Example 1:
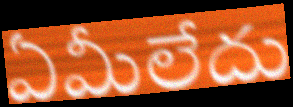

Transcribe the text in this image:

ఏమీలేదు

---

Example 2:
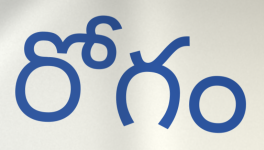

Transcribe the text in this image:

రోగం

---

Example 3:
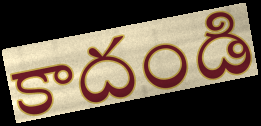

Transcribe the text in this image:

కాదండి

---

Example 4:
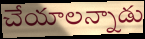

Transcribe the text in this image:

చేయాలన్నాడు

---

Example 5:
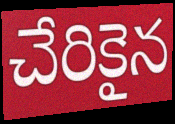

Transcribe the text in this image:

చేరికైన